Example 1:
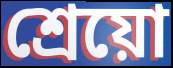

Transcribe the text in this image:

শ্রেয়ো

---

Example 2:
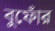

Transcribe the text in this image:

বুফোঁর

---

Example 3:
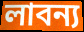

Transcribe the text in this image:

লাবন্য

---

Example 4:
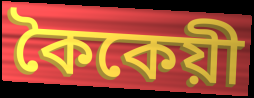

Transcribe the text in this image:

কৈকেয়ী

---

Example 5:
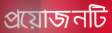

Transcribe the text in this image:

প্রয়োজনটি